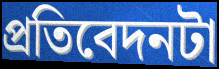
প্রতিবেদনটা